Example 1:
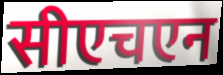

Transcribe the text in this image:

सीएचएन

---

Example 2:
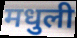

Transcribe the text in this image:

मधुली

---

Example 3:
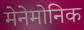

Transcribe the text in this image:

मेनेमोनिक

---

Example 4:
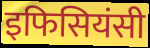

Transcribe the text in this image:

इफिसियंसी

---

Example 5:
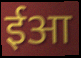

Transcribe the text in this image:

ईआ